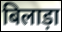
बिलाड़ा